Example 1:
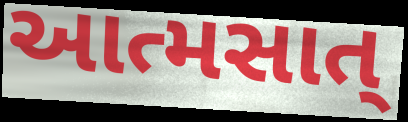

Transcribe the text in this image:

આત્મસાત્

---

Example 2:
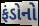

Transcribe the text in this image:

ફંડોનો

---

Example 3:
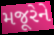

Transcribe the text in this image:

મજૂરેને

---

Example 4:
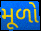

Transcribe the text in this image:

મૂળો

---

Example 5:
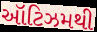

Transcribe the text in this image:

ઑટિઝમથી